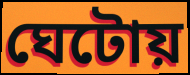
ঘেটোয়